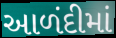
આળંદીમાં